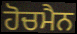
ਹੋਚਮੈਨ